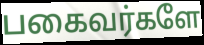
பகைவர்களே